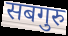
सबगुरु